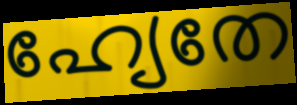
ഹ്യേതേ